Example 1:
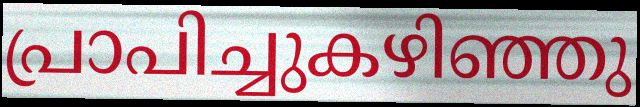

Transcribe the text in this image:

പ്രാപിച്ചുകഴിഞ്ഞു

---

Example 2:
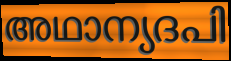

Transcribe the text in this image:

അഥാന്യദപി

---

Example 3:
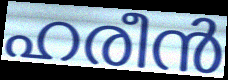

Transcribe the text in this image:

ഹരീൻ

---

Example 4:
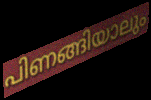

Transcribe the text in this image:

പിണങ്ങിയാലും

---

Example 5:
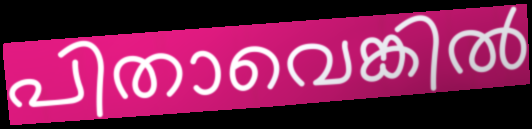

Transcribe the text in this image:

പിതാവെങ്കിൽ